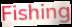
Fishing